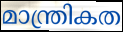
മാന്ത്രികത